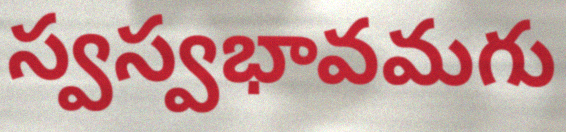
స్వస్వభావమగు